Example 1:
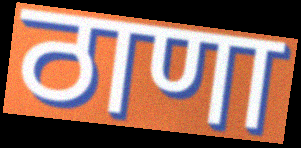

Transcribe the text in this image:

ठाणा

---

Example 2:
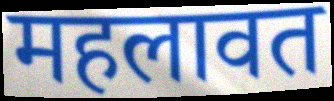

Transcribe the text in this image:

महलावत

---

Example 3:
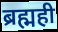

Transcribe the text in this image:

ब्रह्मही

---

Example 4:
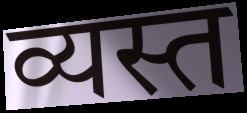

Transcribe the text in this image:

व्‍यस्‍त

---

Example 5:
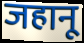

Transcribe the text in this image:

जहानू